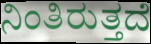
ನಿಂತಿರುತ್ತದೆ